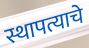
स्थापत्याचे